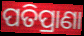
ପତିପ୍ରାଣା